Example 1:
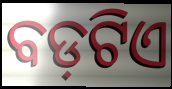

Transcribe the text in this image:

ବଡ଼ଟିଏ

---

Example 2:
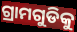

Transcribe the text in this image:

ଗ୍ରାମଗୁଡିକୁ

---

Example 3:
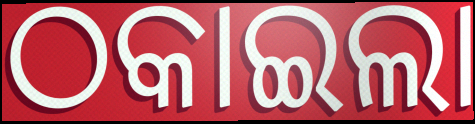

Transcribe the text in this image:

ଠକାଇଲା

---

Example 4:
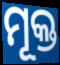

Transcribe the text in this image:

ମୂକ୍ତ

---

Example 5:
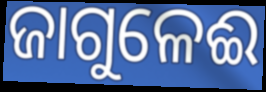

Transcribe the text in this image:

ଜାଗୁଳେଈ